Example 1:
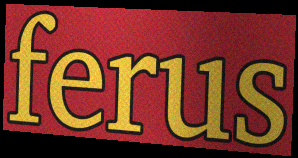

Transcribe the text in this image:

ferus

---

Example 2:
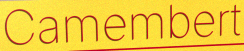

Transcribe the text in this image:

Camembert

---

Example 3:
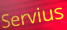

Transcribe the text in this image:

Servius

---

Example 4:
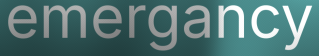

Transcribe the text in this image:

emergancy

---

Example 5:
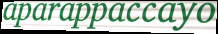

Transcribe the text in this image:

aparappaccayo